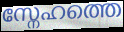
സ്നേഹത്തെ